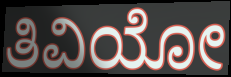
ತಿವಿಯೋ